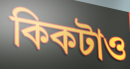
কিকটাও